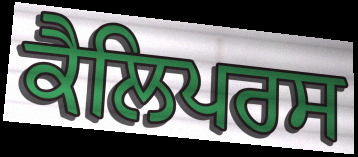
ਕੈਲਿਪਰਸ